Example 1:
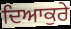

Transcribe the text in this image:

ਦਿਆਕੁਰੇ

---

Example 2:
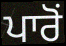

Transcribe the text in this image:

ਪਾਰੋਂ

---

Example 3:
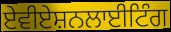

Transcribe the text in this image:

ਏਵੀਏਸ਼ਨਲਾਈਟਿੰਗ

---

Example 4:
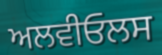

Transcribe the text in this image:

ਅਲਵੀਓਲਸ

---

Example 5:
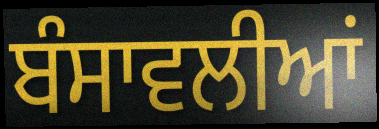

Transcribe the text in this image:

ਬੰਸਾਵਲੀਆਂ